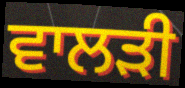
ਵਾਲੜੀ